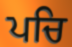
ਪਚਿ